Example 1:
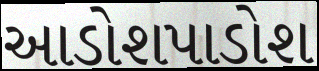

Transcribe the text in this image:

આડોશપાડોશ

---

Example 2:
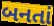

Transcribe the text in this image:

બનતાં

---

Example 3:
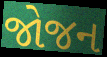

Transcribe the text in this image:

જોજન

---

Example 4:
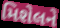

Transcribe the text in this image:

મિશેલને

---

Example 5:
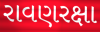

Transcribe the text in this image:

રાવણરક્ષા